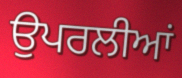
ਉਪਰਲੀਆਂ